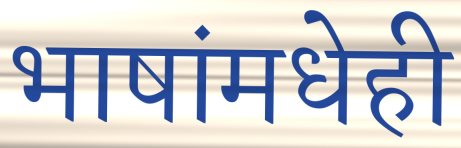
भाषांमधेही